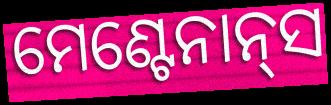
ମେଣ୍ଟେନାନ୍‌ସ